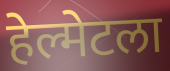
हेल्मेटला